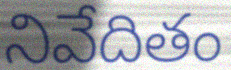
నివేదితం